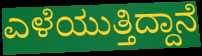
ಎಳೆಯುತ್ತಿದ್ದಾನೆ